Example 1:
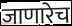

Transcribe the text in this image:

जाणारेच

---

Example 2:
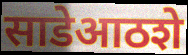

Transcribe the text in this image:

साडेआठशे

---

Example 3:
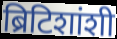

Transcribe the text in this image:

ब्रिटिशांशी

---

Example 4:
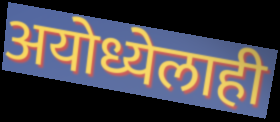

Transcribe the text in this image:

अयोध्येलाही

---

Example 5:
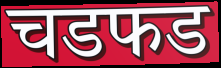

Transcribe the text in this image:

चडफड